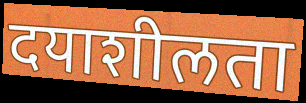
दयाशीलता